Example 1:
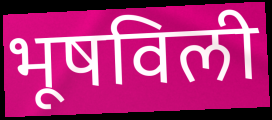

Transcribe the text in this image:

भूषविली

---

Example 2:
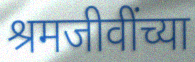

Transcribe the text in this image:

श्रमजीवींच्या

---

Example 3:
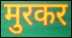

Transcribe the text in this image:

मुरकर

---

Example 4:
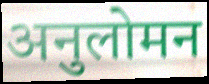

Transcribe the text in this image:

अनुलोमन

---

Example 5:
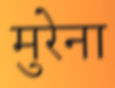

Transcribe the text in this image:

मुरेना